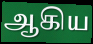
ஆகிய